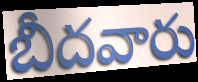
బీదవారు